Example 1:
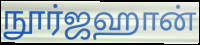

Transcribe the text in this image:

நூர்ஜஹான்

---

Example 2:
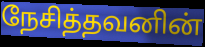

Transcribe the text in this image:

நேசித்தவனின்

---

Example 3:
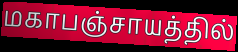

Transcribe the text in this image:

மகாபஞ்சாயத்தில்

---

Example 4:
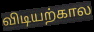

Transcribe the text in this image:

விடியற்கால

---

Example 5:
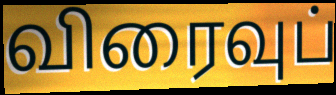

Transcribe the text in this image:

விரைவுப்